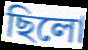
ছিলো